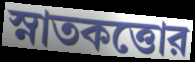
স্নাতকত্তোর